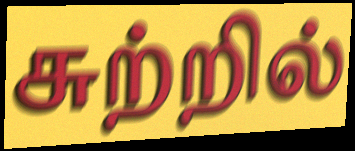
சுற்றில்